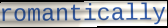
romantically